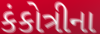
કંકોત્રીના